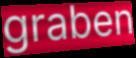
graben